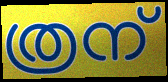
ത്രന്